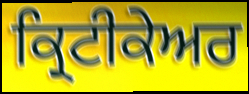
ਕ੍ਰਿਟੀਕੇਅਰ